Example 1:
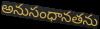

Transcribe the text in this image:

అనుసంధానతను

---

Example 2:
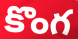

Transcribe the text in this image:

కొంగ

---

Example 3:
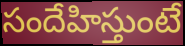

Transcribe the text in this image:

సందేహిస్తుంటే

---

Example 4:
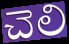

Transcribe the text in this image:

చెలి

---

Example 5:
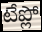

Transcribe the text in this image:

టేప్లో